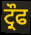
ਟ੍ਰੌਫ